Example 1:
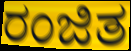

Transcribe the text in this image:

ರಂಜಿತ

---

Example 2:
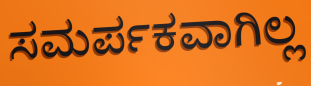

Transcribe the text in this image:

ಸಮರ್ಪಕವಾಗಿಲ್ಲ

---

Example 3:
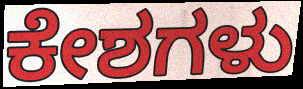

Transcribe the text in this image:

ಕೇಶಗಳು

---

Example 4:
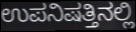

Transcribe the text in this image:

ಉಪನಿಷತ್ತಿನಲ್ಲಿ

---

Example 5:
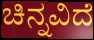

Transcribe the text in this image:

ಚಿನ್ನವಿದೆ